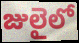
జులైలో